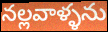
నల్లవాళ్ళను